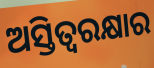
ଅସ୍ତିତ୍ୱରକ୍ଷାର